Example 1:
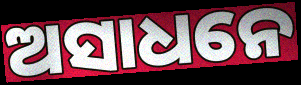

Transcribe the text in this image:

ଅସାଧନେ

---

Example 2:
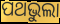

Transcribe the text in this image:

ପଥଭୁଲା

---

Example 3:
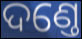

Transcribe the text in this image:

ଦଣ୍ତେ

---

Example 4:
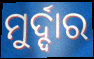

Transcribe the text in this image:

ମୁର୍ଦ୍ଦାର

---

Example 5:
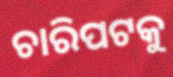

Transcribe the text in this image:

ଚାରିପଟକୁ